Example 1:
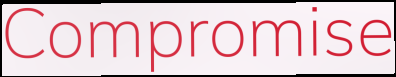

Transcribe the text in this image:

Compromise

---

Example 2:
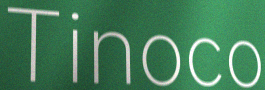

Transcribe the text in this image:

Tinoco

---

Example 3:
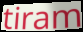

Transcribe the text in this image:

tiram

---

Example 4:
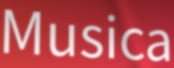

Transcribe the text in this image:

Musica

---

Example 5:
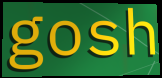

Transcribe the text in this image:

gosh